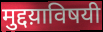
मुद्दय़ाविषयी